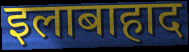
इलाबाहाद